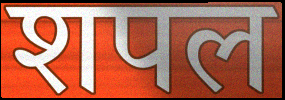
शपल